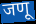
जणू